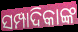
ସମ୍ପାଦିକାଙ୍କ